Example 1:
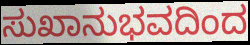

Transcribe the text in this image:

ಸುಖಾನುಭವದಿಂದ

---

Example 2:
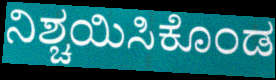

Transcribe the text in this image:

ನಿಶ್ಚಯಿಸಿಕೊಂಡ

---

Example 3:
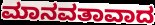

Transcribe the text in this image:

ಮಾನವತಾವಾದ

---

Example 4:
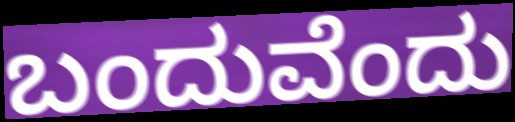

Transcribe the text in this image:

ಬಂದುವೆಂದು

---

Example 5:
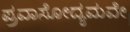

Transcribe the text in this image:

ಪ್ರವಾಸೋದ್ಯಮವೇ